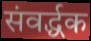
संवर्द्धक